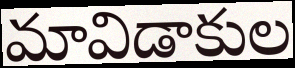
మావిడాకుల